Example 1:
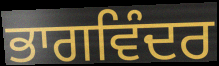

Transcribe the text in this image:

ਭਾਗਵਿੰਦਰ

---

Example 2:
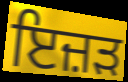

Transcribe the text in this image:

ਇਜ਼ੜ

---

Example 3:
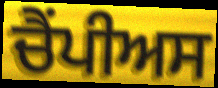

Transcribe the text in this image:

ਚੈਂਪੀਅਸ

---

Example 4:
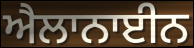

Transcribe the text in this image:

ਐਲਾਨਾਈਨ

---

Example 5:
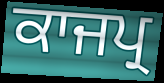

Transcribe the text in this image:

ਕਾਜਪ੍ਰ